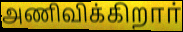
அணிவிக்கிறார்